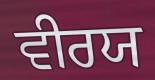
ਵੀਰਯ